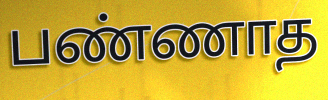
பண்ணாத